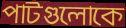
পাটগুলোকে